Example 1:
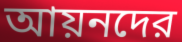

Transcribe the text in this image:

আয়নদের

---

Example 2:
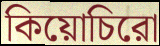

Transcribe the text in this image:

কিয়োচিরো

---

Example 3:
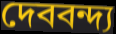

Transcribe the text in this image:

দেববন্দ্য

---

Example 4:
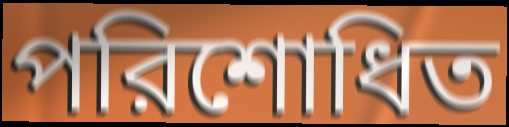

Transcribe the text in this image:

পরিশোধিত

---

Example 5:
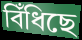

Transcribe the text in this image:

বিঁধিছে